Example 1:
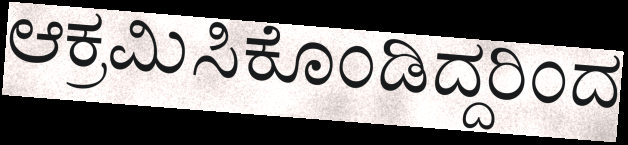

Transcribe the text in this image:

ಆಕ್ರಮಿಸಿಕೊಂಡಿದ್ದರಿಂದ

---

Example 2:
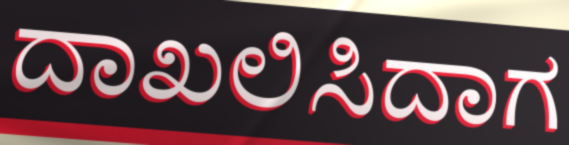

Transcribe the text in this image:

ದಾಖಲಿಸಿದಾಗ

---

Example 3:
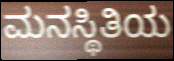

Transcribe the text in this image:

ಮನಸ್ಥಿತಿಯ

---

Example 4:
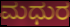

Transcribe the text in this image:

ಮಧುರ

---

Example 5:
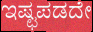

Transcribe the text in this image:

ಇಷ್ಟಪಡದೇ